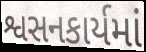
શ્વસનકાર્યમાં